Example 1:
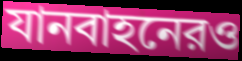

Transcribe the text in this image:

যানবাহনেরও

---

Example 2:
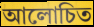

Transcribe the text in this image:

আলোচিত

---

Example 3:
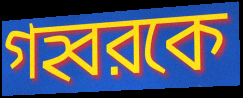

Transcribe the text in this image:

গহ্বরকে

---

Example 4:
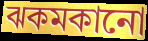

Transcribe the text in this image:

ঝকমকানো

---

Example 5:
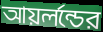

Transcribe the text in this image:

আয়র্লন্ডের